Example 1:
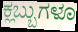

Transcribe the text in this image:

ಕ್ಲಬ್ಬುಗಳೂ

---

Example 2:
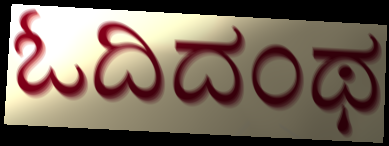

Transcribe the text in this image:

ಓದಿದಂಥ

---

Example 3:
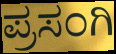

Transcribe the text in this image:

ಪ್ರಸಂಗಿ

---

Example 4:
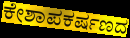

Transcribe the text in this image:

ಕೇಶಾಪಕರ್ಷಣದ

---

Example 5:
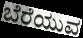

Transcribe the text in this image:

ಬೆರೆಯುವ